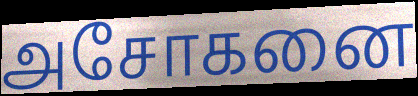
அசோகனை